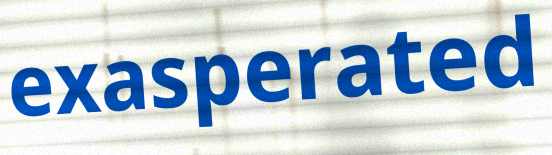
exasperated